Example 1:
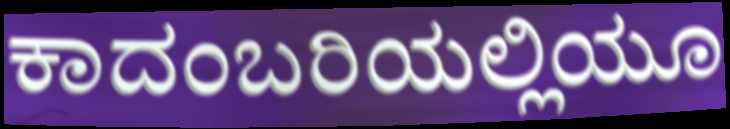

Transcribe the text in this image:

ಕಾದಂಬರಿಯಲ್ಲಿಯೂ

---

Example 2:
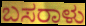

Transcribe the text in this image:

ಬಸರಾಳು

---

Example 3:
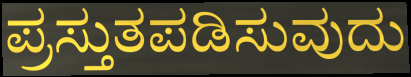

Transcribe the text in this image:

ಪ್ರಸ್ತುತಪಡಿಸುವುದು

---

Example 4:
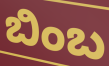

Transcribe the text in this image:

ಬಿಂಬ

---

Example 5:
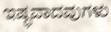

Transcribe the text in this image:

ಇಷ್ಟವಾದವುಗಳು